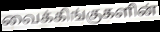
வைக்கிங்குகளின்